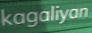
kagaliyan